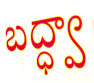
బద్ధ్వా